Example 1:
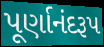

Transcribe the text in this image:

પૂર્ણાનંદરૂપ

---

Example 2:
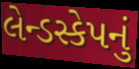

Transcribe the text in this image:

લેન્ડસ્કેપનું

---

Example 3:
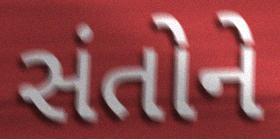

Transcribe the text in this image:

સંતોને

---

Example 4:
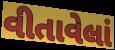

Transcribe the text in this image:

વીતાવેલાં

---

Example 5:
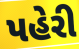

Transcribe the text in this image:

પહેરી